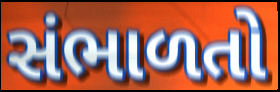
સંભાળતો